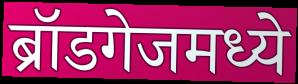
ब्रॉडगेजमध्ये